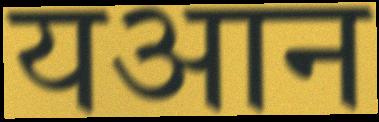
यआन